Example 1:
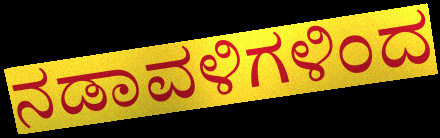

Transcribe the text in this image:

ನಡಾವಳಿಗಳಿಂದ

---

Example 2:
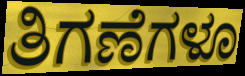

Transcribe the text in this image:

ತಿಗಣೆಗಳೂ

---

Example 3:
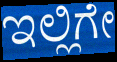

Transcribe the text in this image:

ಇಲ್ಲಿಗೇ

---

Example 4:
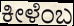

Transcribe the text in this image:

ಕೀಳೆಂಬ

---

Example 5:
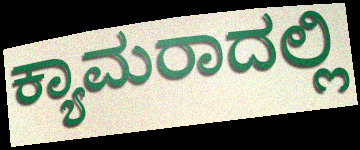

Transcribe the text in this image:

ಕ್ಯಾಮರಾದಲ್ಲಿ